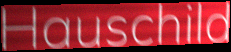
Hauschild